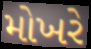
મોખરે